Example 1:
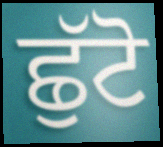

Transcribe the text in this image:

ਛੁੱਟੋ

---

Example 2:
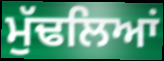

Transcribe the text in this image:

ਮੁੱਢਲਿਆਂ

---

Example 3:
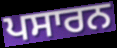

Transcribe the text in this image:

ਪਸਾਰਨ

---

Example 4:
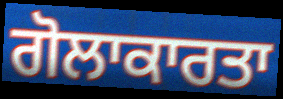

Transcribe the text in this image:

ਗੋਲਾਕਾਰਤਾ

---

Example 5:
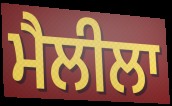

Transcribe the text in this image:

ਮੈਲੀਲਾ